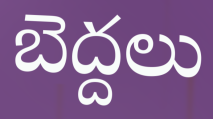
బెద్దలు